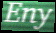
Eny